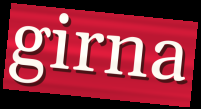
girna